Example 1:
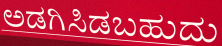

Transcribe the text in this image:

ಅಡಗಿಸಿಡಬಹುದು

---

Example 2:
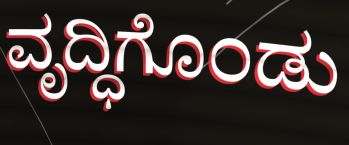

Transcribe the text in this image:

ವೃದ್ಧಿಗೊಂಡು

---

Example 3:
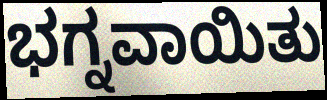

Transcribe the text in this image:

ಭಗ್ನವಾಯಿತು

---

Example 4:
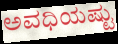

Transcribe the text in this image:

ಅವಧಿಯಷ್ಟು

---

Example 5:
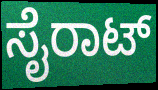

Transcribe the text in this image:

ಸೈರಾಟ್